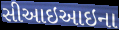
સીઆઇઆઇના